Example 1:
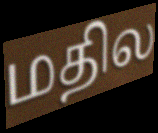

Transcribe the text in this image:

மதில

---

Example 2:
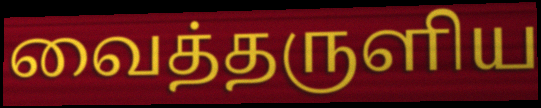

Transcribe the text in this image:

வைத்தருளிய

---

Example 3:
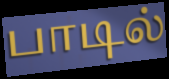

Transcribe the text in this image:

பாடில்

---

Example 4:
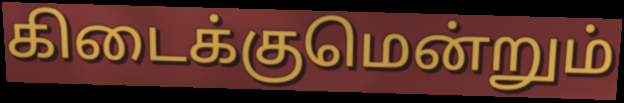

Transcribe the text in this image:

கிடைக்குமென்றும்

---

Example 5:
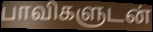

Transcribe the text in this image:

பாவிகளுடன்